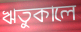
ঋতুকালে